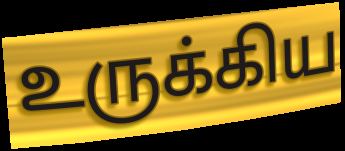
உருக்கிய